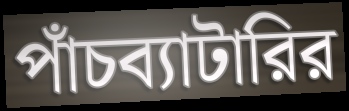
পাঁচব্যাটারির